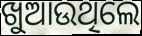
ଖୁଆଉଥିଲେ